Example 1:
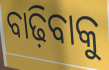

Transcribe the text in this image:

ବାଢ଼ିବାକୁ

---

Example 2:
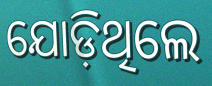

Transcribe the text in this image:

ଯୋଡ଼ିଥିଲେ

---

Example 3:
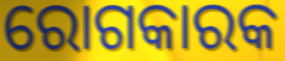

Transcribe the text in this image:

ରୋଗକାରକ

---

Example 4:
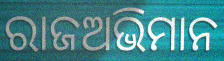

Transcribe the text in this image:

ରାଜଅଭିମାନ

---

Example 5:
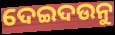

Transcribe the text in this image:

ଦେଇଦଉନୁ